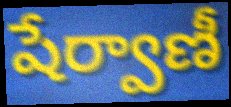
షేర్వాణీ